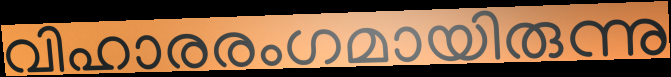
വിഹാരരംഗമായിരുന്നു